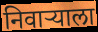
निवाऱ्याला